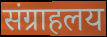
संग्राहलय